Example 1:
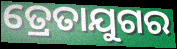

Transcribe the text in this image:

ତ୍ରେତାଯୁଗର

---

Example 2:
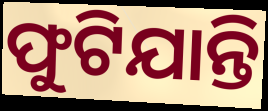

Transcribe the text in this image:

ଫୁଟିଯାନ୍ତି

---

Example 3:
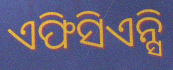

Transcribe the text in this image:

ଏଫିସିଏନ୍ସି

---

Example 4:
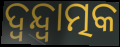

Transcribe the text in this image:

ଦ୍ଵନ୍ଦ୍ଵାତ୍ମକ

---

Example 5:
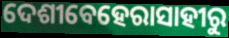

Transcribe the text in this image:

ଦେଶୀବେହେରାସାହୀରୁ